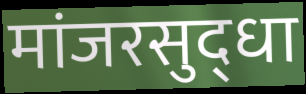
मांजरसुद्धा